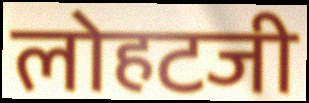
लोहटजी